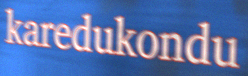
karedukondu